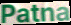
Patna